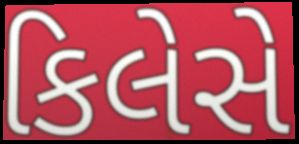
કિલેસે